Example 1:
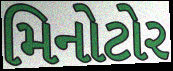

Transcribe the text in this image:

મિનોટોર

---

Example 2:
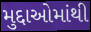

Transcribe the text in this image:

મુદ્દાઓમાંથી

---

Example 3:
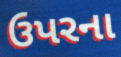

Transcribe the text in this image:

ઉપરના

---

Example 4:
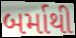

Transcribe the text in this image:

બર્માથી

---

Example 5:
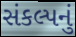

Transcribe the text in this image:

સંકલ્પનું